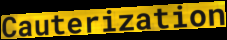
Cauterization